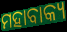
ମହାବାକ୍ୟ